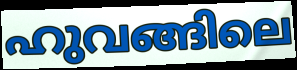
ഹുവങ്ങിലെ